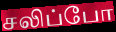
சலிப்போ